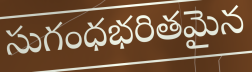
సుగంధభరితమైన